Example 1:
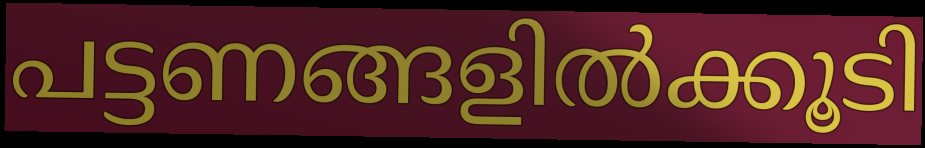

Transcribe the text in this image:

പട്ടണങ്ങളിൽക്കൂടി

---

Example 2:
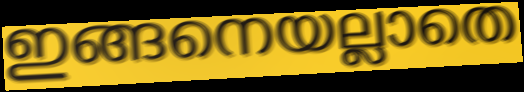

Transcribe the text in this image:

ഇങ്ങനെയല്ലാതെ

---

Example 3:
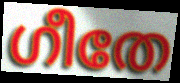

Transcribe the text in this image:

ഗീതേ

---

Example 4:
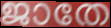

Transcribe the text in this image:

ജാതേ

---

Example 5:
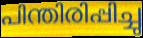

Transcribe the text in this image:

പിന്തിരിപ്പിച്ചു